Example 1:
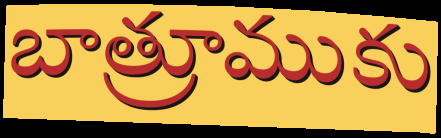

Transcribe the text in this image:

బాత్రూముకు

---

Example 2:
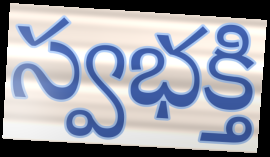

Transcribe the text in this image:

స్వభక్తి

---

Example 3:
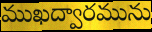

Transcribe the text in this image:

ముఖద్వారమును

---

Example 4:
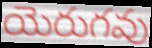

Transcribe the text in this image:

యెరుగవు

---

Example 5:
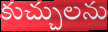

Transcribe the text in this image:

కుచ్చులను